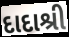
દાદાશ્રી